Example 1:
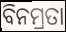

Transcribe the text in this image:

ବିନମ୍ରତା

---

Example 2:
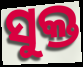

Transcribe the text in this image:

ସୁକ୍ତ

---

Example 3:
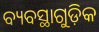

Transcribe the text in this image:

ବ୍ୟବସ୍ଥାଗୁଡ଼ିକ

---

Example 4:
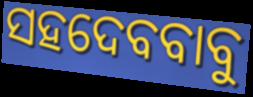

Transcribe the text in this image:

ସହଦେବବାବୁ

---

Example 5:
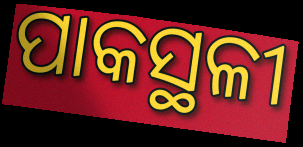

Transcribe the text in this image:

ପାକସ୍ଥଳୀ